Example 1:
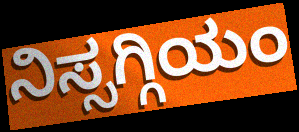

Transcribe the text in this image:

ನಿಸ್ಸಗ್ಗಿಯಂ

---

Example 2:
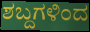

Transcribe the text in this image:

ಶಬ್ದಗಳಿಂದ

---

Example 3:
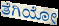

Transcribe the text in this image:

ತೆಗಿಯೋ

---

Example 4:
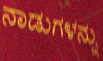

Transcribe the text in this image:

ನಾಡುಗಳನ್ನು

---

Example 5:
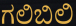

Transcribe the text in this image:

ಗಲಿಬಿಲಿ